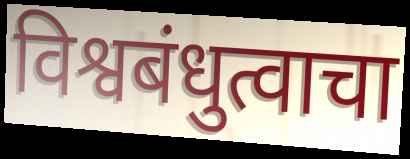
विश्वबंधुत्वाचा